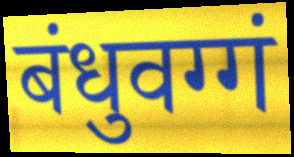
बंधुवग्गं